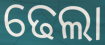
ଢେଲା